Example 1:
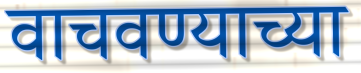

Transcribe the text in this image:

वाचवण्याच्या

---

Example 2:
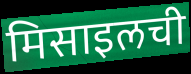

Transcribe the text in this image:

मिसाइलची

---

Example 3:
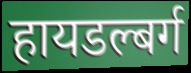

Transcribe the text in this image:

हायडल्बर्ग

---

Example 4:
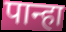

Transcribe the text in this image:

पान्हा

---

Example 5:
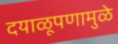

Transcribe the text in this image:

दयाळूपणामुळे